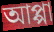
আপ্পা